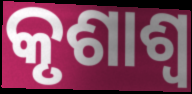
କୃଶାଶ୍ୱ